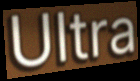
Ultra